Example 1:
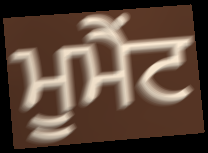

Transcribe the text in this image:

ਮੂਮੈਂਟ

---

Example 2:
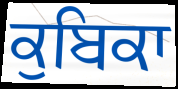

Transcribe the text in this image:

ਕੁਬਿਕਾ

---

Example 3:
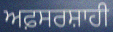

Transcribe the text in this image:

ਅਫ਼ਸਰਸ਼ਾਹੀ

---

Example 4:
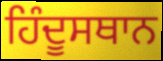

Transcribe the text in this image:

ਹਿੰਦੂਸਥਾਨ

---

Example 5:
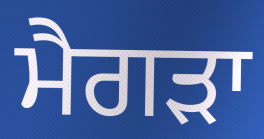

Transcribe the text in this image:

ਮੈਗੜਾ